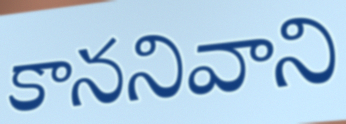
కాననివాని